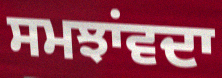
ਸਮਝਾਂਵਦਾ